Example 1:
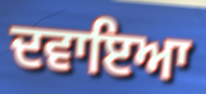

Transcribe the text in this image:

ਦਵਾਇਆ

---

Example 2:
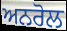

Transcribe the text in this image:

ਅਨਰੋਲ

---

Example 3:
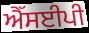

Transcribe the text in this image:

ਐੱਸਈਪੀ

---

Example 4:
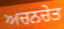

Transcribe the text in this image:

ਅਚਨਚੇਤ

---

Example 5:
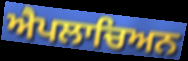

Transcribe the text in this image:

ਐਪਲਾਚਿਅਨ